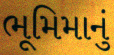
ભૂમિમાનું